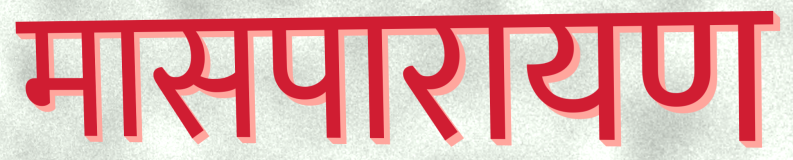
मासपारायण